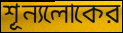
শূন্যলোকের